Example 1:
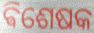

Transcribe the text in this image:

ଵିଶେଷକ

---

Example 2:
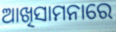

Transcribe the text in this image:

ଆଖିସାମନାରେ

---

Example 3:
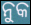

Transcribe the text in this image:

ନୁକ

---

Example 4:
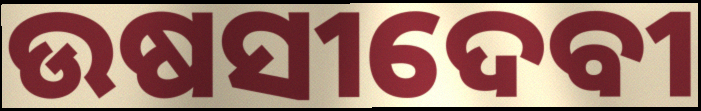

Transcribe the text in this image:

ଉଷସୀଦେବୀ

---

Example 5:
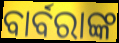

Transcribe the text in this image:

ବାର୍ବରାଙ୍କ